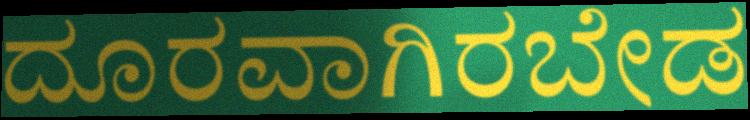
ದೂರವಾಗಿರಬೇಡ